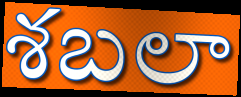
శబలా